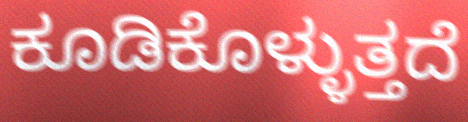
ಕೂಡಿಕೊಳ್ಳುತ್ತದೆ